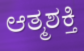
ಆತ್ಮಶಕ್ತಿ